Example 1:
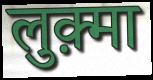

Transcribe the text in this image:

लुक़्मा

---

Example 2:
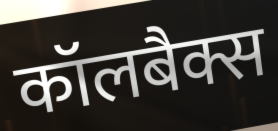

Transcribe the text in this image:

कॉलबैक्स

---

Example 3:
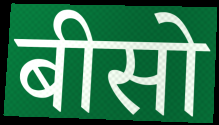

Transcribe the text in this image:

बीसो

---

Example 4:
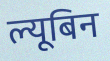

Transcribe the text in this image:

ल्यूबिन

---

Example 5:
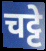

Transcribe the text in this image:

चट्टे